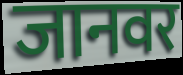
जानवर